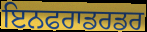
ਇਨਫਰਾਡਰਡਰ